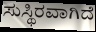
ಸುಸ್ಥಿರವಾಗಿದೆ